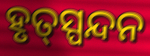
ହୃତ୍‌ସ୍ପନ୍ଦନ